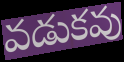
వడుకవు